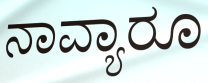
ನಾವ್ಯಾರೂ